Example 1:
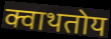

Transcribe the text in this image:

क्वाथतोय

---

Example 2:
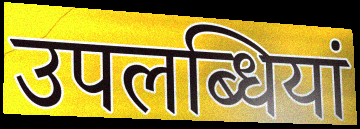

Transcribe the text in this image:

उपलब्धियां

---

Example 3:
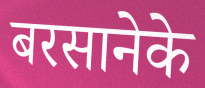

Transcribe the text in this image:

बरसानेके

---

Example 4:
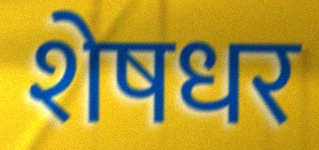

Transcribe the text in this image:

शेषधर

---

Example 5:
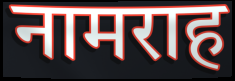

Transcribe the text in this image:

नामराह